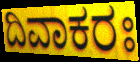
ದಿವಾಕರಃ